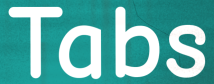
Tabs